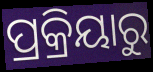
ପ୍ରକ୍ରିୟାରୁ